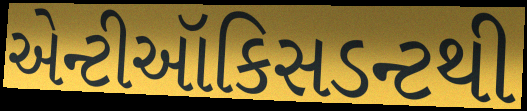
એન્ટીઑકિસડન્ટથી